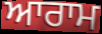
ਆਰਾਮ